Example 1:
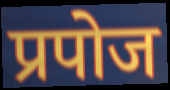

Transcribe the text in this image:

प्रपोज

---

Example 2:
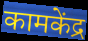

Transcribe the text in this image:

कामकेंद्र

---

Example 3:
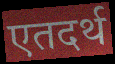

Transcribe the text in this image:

एतदर्थ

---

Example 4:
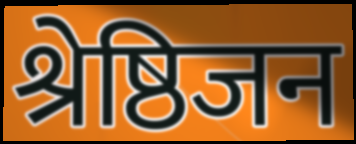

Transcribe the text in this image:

श्रेष्ठिजन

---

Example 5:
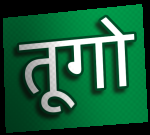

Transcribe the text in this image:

तूगो